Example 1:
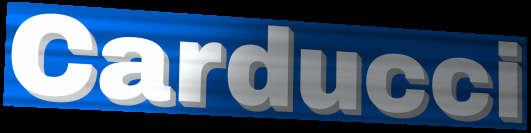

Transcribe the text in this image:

Carducci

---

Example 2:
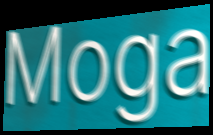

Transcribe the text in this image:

Moga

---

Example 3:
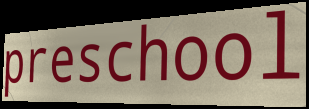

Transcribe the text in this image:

preschool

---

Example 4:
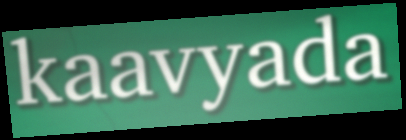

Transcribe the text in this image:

kaavyada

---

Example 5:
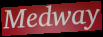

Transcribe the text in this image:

Medway